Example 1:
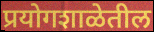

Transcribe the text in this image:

प्रयोगशाळेतील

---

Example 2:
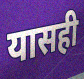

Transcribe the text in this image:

यासही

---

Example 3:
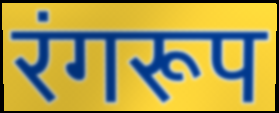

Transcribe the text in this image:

रंगरूप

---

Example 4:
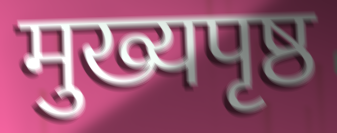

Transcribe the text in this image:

मुख्यपृष्ठ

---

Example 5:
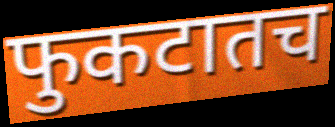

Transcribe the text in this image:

फुकटातच